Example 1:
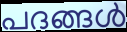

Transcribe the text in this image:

പദങ്ങൾ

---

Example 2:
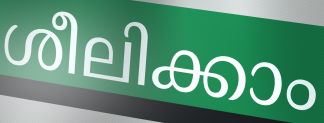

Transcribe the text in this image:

ശീലിക്കാം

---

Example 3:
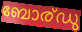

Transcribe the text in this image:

ബോര്ഡു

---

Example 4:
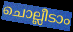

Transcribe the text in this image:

ചൊല്ലീടാം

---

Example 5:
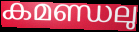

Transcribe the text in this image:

കമണ്ഡലു